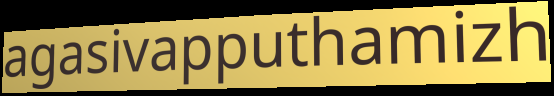
agasivapputhamizh